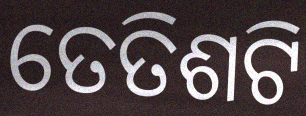
ତେତିଶଟି